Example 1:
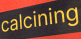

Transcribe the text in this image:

calcining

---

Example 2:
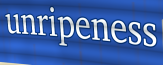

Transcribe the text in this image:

unripeness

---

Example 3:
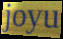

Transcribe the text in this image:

joyu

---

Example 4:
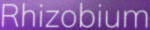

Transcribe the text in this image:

Rhizobium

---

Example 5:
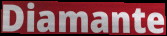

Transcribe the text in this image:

Diamante